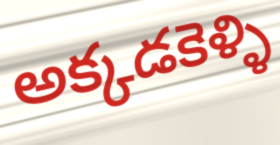
అక్కడకెళ్ళి